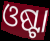
ଓଷ୍ଟା